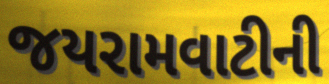
જયરામવાટીની